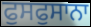
ਫੁਸਫੁਸਾਨਾ